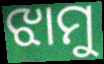
ଝାମୁ